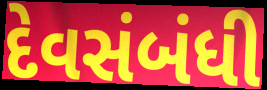
દેવસંબંધી